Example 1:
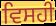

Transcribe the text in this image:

ਵਿਸਹੀ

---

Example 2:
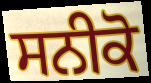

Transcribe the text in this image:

ਸਨੀਕੋ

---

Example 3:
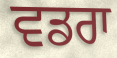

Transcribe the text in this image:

ਵਡਰਾ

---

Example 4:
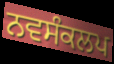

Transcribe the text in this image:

ਨਵਸੰਕਲਪ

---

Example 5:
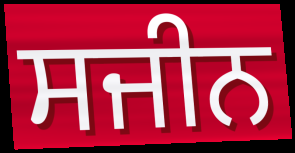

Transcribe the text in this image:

ਸਜੀਨ